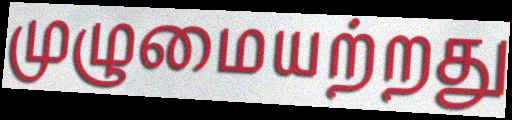
முழுமையற்றது